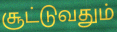
சூட்டுவதும்